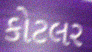
કોટલર